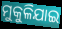
ମୁକୁଳିଯାଇ